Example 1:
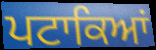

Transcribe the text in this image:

ਪਟਾਕਿਆਂ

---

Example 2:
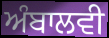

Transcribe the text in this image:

ਅੰਬਾਲਵੀ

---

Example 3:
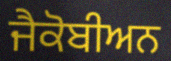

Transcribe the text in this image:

ਜੈਕੋਬੀਅਨ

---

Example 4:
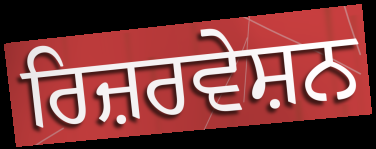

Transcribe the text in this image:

ਰਿਜ਼ਰਵੇਸ਼ਨ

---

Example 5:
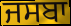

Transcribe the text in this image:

ਜਸਬਾ